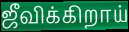
ஜீவிக்கிறாய்